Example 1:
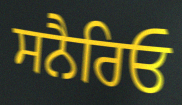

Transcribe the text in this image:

ਸਨੈਰਿਓ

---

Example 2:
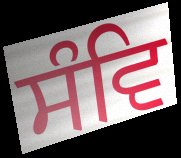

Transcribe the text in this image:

ਸੰਵਿ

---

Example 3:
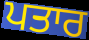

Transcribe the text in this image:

ਪਤਾਰ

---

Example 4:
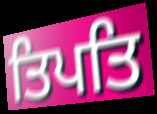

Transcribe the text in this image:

ਤਿਪਤਿ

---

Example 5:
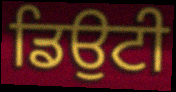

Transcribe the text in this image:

ਡਿਉਟੀ